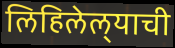
लिहिलेल्याची